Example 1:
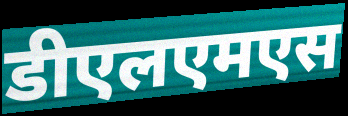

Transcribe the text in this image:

डीएलएमएस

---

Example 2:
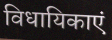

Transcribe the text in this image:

विधायिकाएं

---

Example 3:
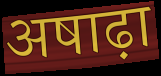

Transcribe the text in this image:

अषाढ़ा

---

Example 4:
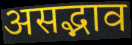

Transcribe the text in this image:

असद्भाव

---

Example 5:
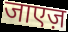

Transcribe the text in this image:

जाएज़